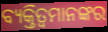
ବ୍ୟକ୍ତିତ୍ୱମାନଙ୍କର